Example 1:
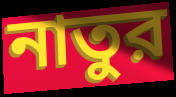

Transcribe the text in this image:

নাতুর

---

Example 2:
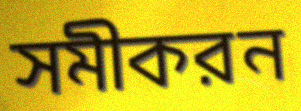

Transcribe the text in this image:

সমীকরন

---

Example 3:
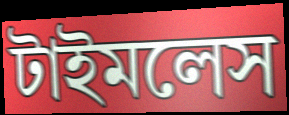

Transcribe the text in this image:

টাইমলেস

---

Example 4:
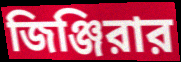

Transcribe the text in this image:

জিঞ্জিরার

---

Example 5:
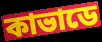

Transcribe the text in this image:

কাভাডে